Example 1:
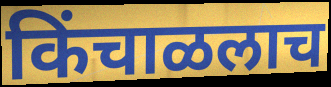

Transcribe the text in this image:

किंचाळलाच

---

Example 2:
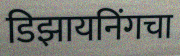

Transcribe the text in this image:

डिझायनिंगचा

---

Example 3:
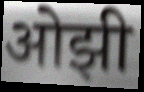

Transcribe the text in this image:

ओझी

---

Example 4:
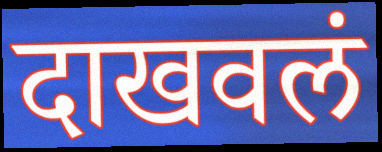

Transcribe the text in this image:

दाखवलं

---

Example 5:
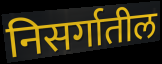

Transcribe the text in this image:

निसर्गातील